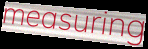
measuring